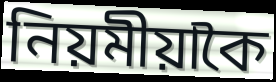
নিয়মীয়াকৈ